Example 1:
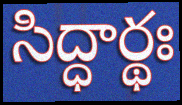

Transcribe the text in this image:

సిద్ధార్థః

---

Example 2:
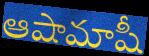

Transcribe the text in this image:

ఆషామాషీ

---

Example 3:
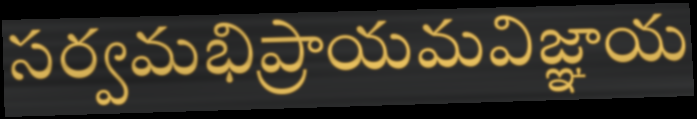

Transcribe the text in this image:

సర్వమభిప్రాయమవిజ్ఞాయ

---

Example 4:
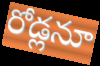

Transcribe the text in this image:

రోడ్లనూ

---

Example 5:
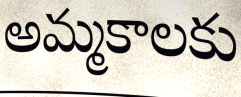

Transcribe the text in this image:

అమ్మకాలకు